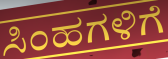
ಸಿಂಹಗಳಿಗೆ